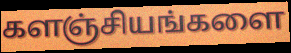
களஞ்சியங்களை